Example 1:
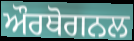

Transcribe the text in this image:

ਔਰਥੋਗਨਲ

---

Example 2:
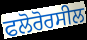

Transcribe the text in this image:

ਫਲੋਰੋਰਸੀਲ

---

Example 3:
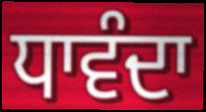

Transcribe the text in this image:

ਧਾਵੰਦਾ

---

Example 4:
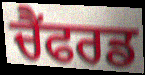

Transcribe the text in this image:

ਚੈਂਫਰਡ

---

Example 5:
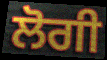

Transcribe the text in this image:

ਲੋਗੀ